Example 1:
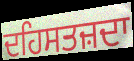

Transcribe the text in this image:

ਦਹਿਸਤਜ਼ਦਾ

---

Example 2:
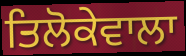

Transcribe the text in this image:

ਤਿਲੋਕੇਵਾਲਾ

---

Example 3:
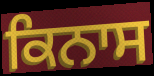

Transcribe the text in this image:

ਕਿਨਾਸ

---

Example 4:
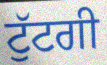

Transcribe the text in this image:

ਟੁੱਟਗੀ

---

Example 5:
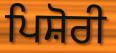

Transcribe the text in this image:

ਪਿਸ਼ੋਰੀ